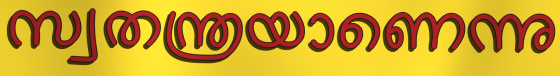
സ്വതന്ത്രയാണെന്നു